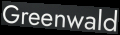
Greenwald